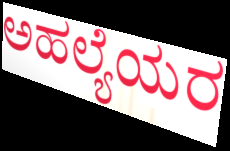
ಅಹಲ್ಯೆಯರ